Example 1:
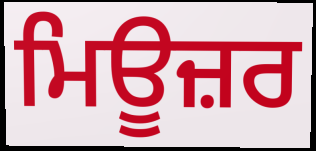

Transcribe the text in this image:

ਮਿਊਜ਼ਰ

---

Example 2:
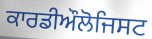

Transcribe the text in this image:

ਕਾਰਡੀਔਲੋਜਿਸਟ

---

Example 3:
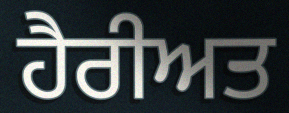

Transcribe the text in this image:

ਹੈਰੀਅਤ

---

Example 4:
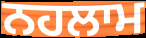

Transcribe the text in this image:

ਨਹਲਾਮ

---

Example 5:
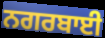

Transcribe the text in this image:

ਨਗਰਬਾਈ